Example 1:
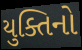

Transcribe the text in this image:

યુક્તિનો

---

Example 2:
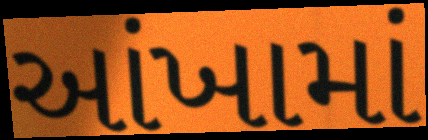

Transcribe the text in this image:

આંખામાં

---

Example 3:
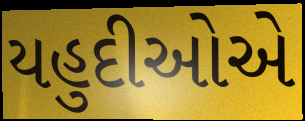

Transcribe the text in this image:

યહુદીઓએ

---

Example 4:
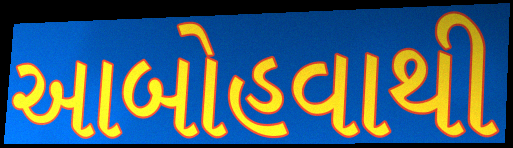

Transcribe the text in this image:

આબોહવાથી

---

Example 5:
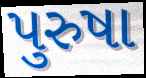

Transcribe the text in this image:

પુરુષા